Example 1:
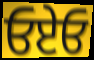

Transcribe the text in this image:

ਓਏਓ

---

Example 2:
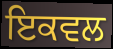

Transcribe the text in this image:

ਇਕਵਲ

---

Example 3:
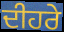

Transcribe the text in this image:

ਦੀਹਰੇ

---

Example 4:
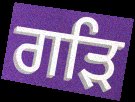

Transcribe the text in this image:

ਗੜਿ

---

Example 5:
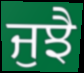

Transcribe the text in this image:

ਜੁਝੈ